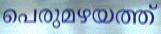
പെരുമഴയത്ത്